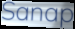
Sanap